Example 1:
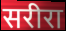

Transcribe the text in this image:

सरीरा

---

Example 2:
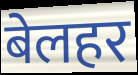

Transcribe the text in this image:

बेलहर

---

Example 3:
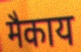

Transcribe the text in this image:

मैकाय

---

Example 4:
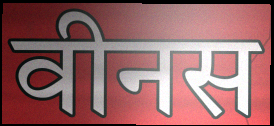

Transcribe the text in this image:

वीनस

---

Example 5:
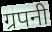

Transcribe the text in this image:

ग्रपनी